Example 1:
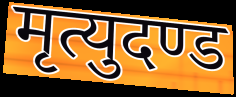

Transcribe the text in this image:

मृत्युदण्ड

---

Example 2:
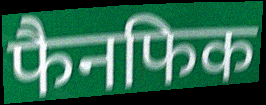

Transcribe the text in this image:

फैनफिक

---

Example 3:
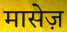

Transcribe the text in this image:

मासेज़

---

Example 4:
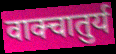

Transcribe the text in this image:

वाक्चातुर्य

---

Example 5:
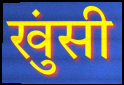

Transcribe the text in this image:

खुंसी